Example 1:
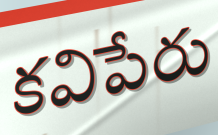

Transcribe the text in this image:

కవిపేరు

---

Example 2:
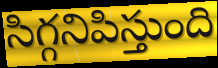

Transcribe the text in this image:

సిగ్గనిపిస్తుంది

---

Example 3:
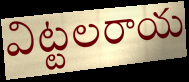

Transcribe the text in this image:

విట్టలరాయ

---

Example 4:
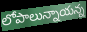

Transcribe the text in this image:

లోపాలున్నాయన్న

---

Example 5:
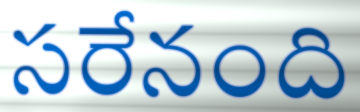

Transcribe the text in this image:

సరేనంది